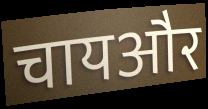
चायऔर